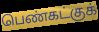
பெண்கட்குக்